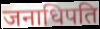
जनाधिपति